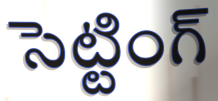
సెట్టింగ్